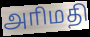
அரிமதி